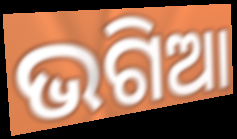
ଭଗିଆ